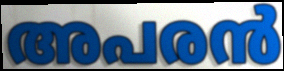
അപരൻ